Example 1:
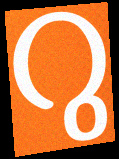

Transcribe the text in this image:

റു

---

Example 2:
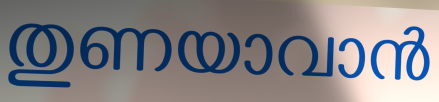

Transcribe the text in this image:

തുണയാവാൻ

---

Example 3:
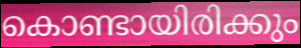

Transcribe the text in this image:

കൊണ്ടായിരിക്കും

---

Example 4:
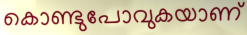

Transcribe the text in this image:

കൊണ്ടുപോവുകയാണ്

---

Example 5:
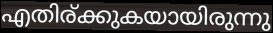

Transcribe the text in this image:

എതിര്ക്കുകയായിരുന്നു